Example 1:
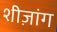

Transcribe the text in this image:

शीज़ांग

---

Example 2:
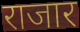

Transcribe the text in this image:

राजार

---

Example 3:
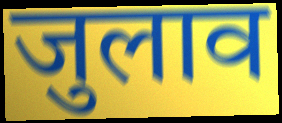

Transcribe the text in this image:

जुलाव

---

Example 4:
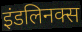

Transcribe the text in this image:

इंडलिनक्स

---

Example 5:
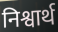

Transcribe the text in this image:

निश्वार्थ